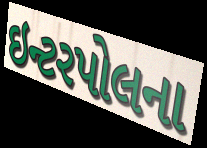
ઇન્ટરપોલના